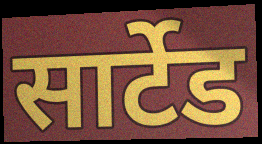
सार्टेड